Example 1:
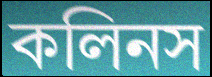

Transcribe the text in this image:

কলিনস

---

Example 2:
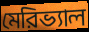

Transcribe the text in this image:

মেরিভ্যাল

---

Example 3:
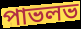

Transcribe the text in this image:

পাভলভ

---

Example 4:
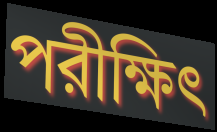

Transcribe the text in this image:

পরীক্ষিৎ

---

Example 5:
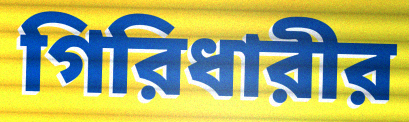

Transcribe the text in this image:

গিরিধারীর